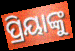
ପ୍ରିୟାଙ୍କୁ